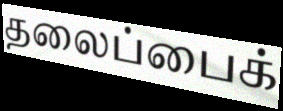
தலைப்பைக்